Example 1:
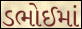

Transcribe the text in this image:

ડભોઈમાં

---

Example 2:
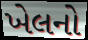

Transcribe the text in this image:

ખેલનો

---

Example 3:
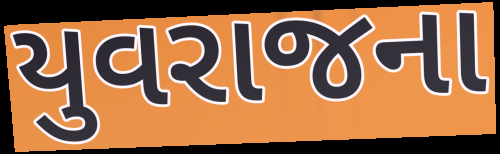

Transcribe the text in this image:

યુવરાજના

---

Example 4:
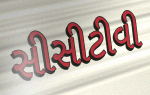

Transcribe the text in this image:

સીસીટીવી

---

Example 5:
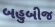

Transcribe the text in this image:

બહુબીજ